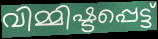
വിമ്മിഷ്ടപ്പെട്ട്